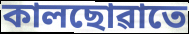
কালছোৱাতে